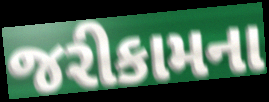
જરીકામના